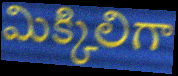
మిక్కిలిగా